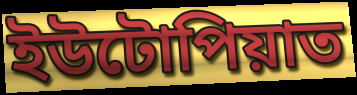
ইউটোপিয়াত